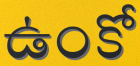
ఉంకో